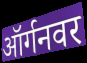
ऑर्गनवर